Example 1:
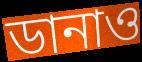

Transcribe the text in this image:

ডানাও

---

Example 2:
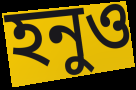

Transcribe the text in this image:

হনুও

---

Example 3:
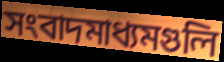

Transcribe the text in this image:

সংবাদমাধ্যমগুলি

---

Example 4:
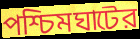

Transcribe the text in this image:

পশ্চিমঘাটের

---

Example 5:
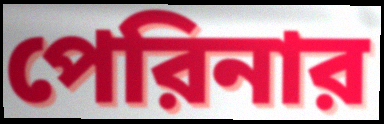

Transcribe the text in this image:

পেরিনার